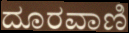
ದೂರವಾಣಿ